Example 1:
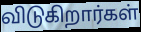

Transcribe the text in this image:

விடுகிறார்கள்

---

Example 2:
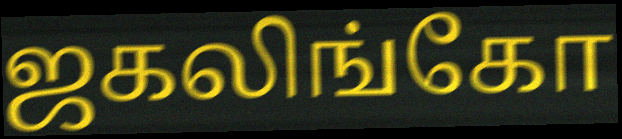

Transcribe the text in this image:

ஜகலிங்கோ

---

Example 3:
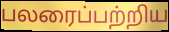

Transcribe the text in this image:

பலரைப்பற்றிய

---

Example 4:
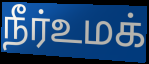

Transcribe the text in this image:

நீர்உமக்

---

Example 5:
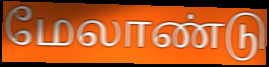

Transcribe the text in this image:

மேலாண்டு